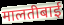
मालतीबाई